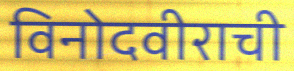
विनोदवीराची